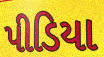
પીડિયા